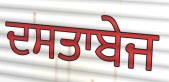
ਦਸਤਾਬੇਜ